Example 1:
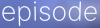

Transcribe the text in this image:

episode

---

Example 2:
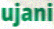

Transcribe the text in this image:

ujani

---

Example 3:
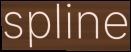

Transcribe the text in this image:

spline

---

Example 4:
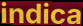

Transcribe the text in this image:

indica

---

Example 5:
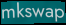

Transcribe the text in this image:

mkswap